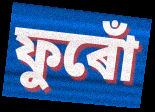
ফুৰোঁ